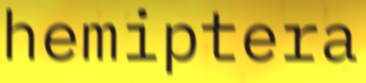
hemiptera